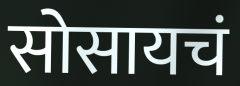
सोसायचं